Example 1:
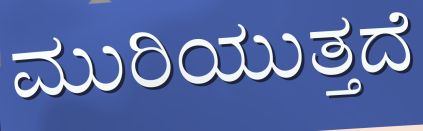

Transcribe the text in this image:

ಮುರಿಯುತ್ತದೆ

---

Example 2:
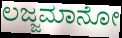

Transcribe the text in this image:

ಲಜ್ಜಮಾನೋ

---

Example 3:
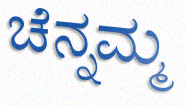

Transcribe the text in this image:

ಚೆನ್ನಮ್ಮ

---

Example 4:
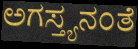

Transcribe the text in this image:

ಅಗಸ್ತ್ಯನಂತೆ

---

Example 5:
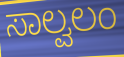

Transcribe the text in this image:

ಸಾಲ್ವಲಂ